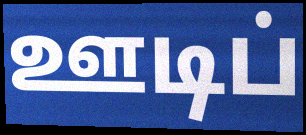
ஊடிப்